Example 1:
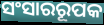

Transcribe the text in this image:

ସଂସାରରୂପକ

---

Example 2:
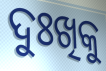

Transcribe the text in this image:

ଦୁଃଖିକୁ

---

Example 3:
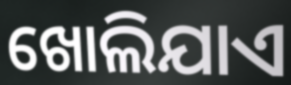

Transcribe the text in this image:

ଖୋଲିଯାଏ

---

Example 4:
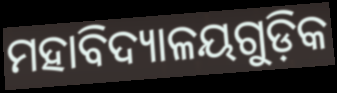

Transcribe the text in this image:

ମହାବିଦ୍ୟାଳୟଗୁଡ଼ିକ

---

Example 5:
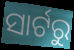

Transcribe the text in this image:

ସାର୍ଟରୁ